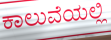
ಕಾಲುವೆಯಲ್ಲಿ